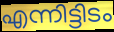
എന്നിട്ടിടം